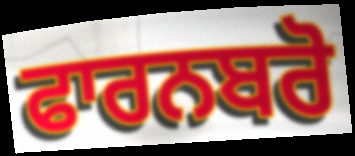
ਫਾਰਨਬਰੋ